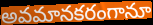
అవమానకరంగానూ